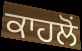
ਕਾਹਲੋਂ